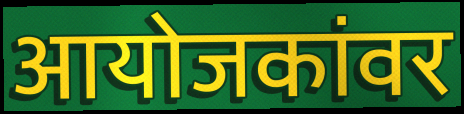
आयोजकांवर